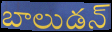
బాలుడన్